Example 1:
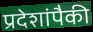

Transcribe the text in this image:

प्रदेशांपैकी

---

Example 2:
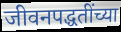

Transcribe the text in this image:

जीवनपद्धतींच्या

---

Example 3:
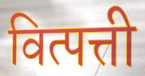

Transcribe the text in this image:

वित्पत्ती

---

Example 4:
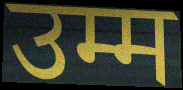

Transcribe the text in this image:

उम्म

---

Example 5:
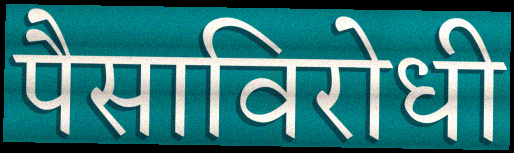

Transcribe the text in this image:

पैसाविरोधी